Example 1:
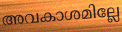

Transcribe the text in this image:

അവകാശമില്ലേ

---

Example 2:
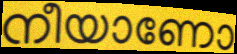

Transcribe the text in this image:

നീയാണോ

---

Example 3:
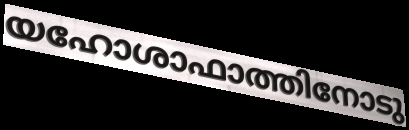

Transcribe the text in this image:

യഹോശാഫാത്തിനോടു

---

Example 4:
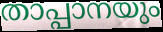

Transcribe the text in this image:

താപ്പാനയും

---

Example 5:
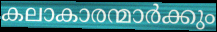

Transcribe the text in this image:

കലാകാരന്മാർക്കും